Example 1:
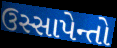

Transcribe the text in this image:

ઉસ્સાપેન્તો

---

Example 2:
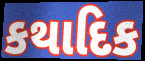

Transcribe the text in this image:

કથાદિક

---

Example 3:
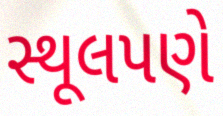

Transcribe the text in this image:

સ્થૂલપણે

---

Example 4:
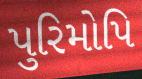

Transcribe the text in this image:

પુરિમોપિ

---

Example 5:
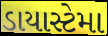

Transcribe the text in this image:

ડાયાસ્ટેમા